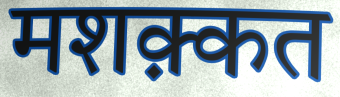
मशक़्कत